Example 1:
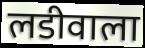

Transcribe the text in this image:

लडीवाला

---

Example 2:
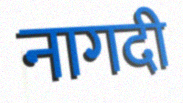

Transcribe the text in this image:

नागदी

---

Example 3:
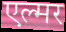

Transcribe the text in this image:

एल्मर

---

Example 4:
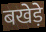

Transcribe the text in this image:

बखेड़े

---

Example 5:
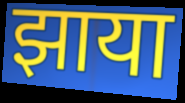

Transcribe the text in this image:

झाया